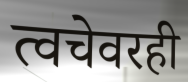
त्वचेवरही